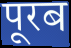
पूरब